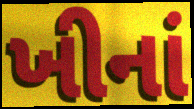
ખીનાં